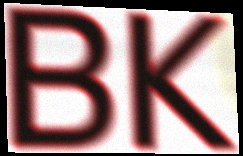
BK